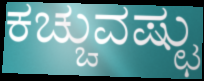
ಕಚ್ಚುವಷ್ಟು